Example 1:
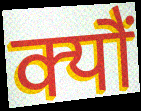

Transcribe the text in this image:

क्यौं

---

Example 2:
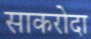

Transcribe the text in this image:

साकरोदा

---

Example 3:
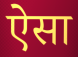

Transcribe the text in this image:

ऐेसा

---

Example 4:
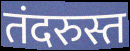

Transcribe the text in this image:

तंदरुस्त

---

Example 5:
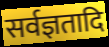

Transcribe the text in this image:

सर्वज्ञतादि